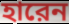
হারেন